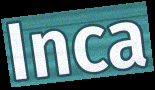
Inca